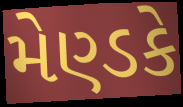
મેણ્ડકે